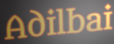
Adilbai